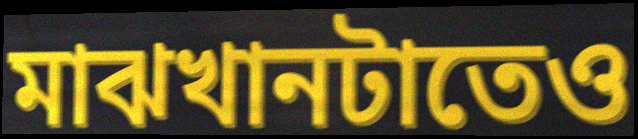
মাঝখানটাতেও